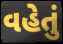
વહેતું